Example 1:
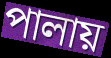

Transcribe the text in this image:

পালায়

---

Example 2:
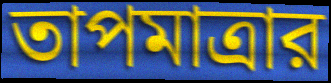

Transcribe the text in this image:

তাপমাত্রার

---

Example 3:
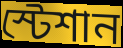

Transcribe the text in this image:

স্টেশান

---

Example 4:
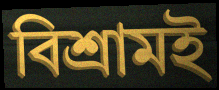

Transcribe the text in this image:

বিশ্রামই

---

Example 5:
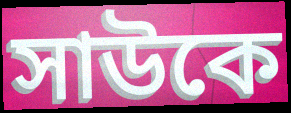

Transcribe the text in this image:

সাউকে